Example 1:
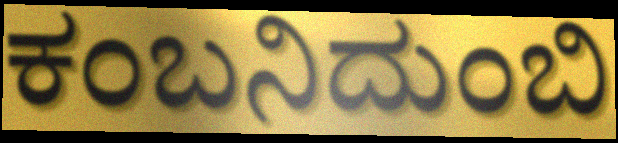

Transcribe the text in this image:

ಕಂಬನಿದುಂಬಿ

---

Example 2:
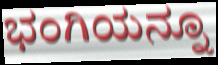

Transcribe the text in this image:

ಭಂಗಿಯನ್ನೂ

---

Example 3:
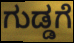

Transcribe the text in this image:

ಗುಡ್ಡಗೆ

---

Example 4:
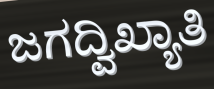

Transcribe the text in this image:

ಜಗದ್ವಿಖ್ಯಾತಿ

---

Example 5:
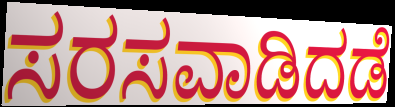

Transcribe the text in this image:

ಸರಸವಾಡಿದಡೆ